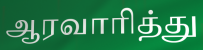
ஆரவாரித்து